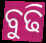
ବୁଢି